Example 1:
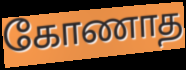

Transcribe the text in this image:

கோணாத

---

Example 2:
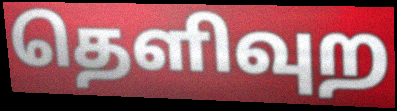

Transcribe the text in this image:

தெளிவுற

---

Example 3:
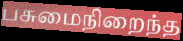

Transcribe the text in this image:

பசுமைநிறைந்த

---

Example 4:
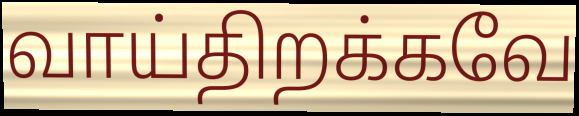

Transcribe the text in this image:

வாய்திறக்கவே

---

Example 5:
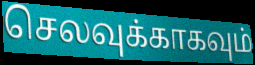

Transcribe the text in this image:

செலவுக்காகவும்